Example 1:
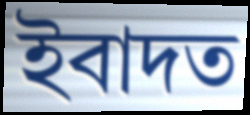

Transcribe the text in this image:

ইবাদত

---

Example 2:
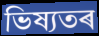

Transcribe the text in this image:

ভিষ্যতৰ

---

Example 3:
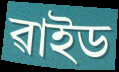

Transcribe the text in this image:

ৱাইড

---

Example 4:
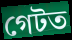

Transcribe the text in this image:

গেটত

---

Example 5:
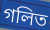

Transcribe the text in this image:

গলিত